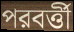
পরবর্ত্তী